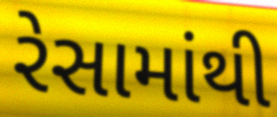
રેસામાંથી